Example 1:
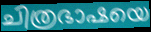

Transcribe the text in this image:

ചിത്രഭാഷയെ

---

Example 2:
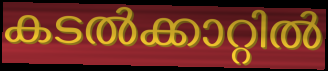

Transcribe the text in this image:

കടൽക്കാറ്റിൽ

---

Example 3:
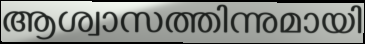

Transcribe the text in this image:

ആശ്വാസത്തിന്നുമായി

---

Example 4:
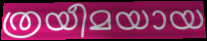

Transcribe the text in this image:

ത്രയീമയായ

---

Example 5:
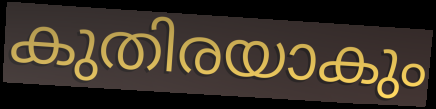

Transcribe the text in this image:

കുതിരയാകും